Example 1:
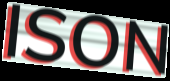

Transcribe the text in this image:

ISON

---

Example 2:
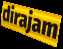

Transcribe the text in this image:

dirajam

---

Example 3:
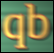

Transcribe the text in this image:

qb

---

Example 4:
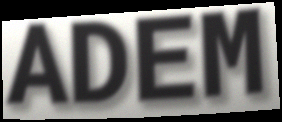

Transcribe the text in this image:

ADEM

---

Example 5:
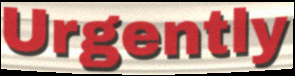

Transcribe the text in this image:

Urgently